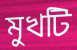
মুখটি